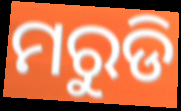
ମରୁଡି